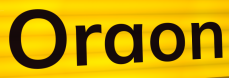
Oraon